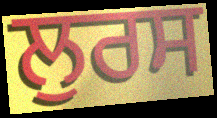
ਲੁਰਸ